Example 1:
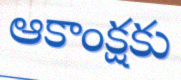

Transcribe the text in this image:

ఆకాంక్షకు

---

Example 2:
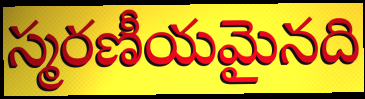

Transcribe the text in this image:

స్మరణీయమైనది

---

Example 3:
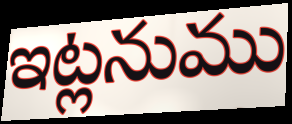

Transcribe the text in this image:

ఇట్లనుము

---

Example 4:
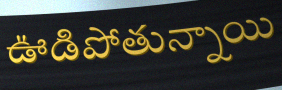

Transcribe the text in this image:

ఊడిపోతున్నాయి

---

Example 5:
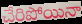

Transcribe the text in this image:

చేరిపోయినా